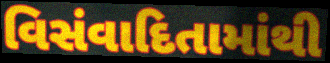
વિસંવાદિતામાંથી